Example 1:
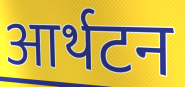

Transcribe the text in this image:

आर्थटन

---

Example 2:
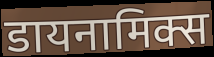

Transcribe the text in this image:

डायनामिक्स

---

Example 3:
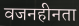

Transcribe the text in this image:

वजनहीनता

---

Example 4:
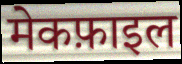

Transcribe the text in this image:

मेकफ़ाइल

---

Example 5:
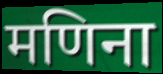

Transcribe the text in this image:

मणिना